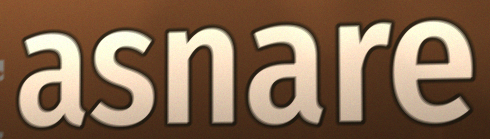
asnare